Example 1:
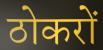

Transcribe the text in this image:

ठोकरों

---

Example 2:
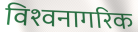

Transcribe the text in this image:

विश्वनागरिक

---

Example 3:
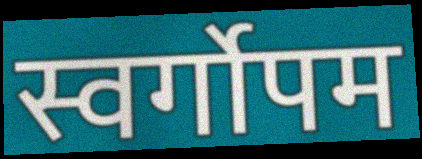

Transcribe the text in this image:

स्वर्गोपम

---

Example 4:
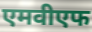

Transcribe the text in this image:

एमवीएफ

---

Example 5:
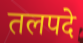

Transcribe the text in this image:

तलपदे